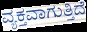
ವ್ಯಕ್ತವಾಗುತ್ತಿದೆ